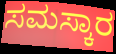
ಸಮಸ್ಕಾರ